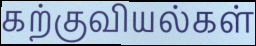
கற்குவியல்கள்